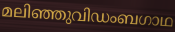
മലിഞ്ഞുവിഡംബഗാഥ